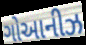
ગોઆનીઝ